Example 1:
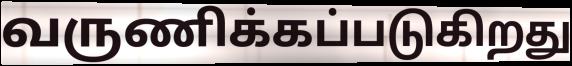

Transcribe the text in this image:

வருணிக்கப்படுகிறது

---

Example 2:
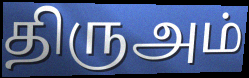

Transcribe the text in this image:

திருஅம்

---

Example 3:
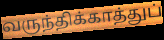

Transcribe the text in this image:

வருந்திக்காத்துப்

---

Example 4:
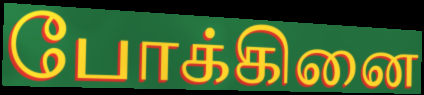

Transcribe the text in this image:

போக்கினை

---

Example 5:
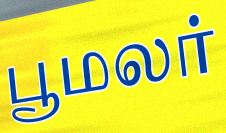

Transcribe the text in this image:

பூமலர்